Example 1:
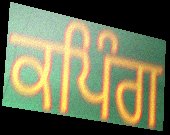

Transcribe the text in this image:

ਕਪਿੰਗ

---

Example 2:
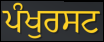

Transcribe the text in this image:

ਪੰਖੁਰਸਟ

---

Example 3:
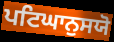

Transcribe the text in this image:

ਪਟਿਘਾਨੁਸਯੋ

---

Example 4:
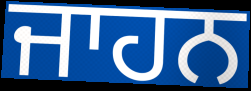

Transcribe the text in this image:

ਜਾਹਨ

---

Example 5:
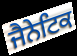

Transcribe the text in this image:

ਜੈਨੇਟਿਕ